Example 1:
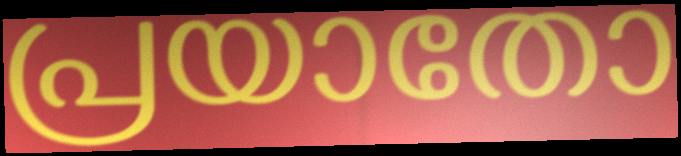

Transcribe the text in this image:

പ്രയാതോ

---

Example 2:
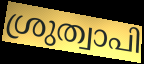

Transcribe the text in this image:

ശ്രുത്വാപി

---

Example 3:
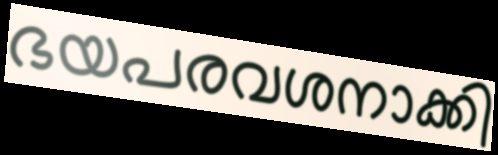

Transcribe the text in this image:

ഭയപരവശനാക്കി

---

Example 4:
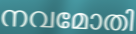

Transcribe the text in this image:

നവമോതി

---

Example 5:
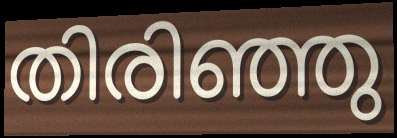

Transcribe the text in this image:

തിരിഞ്ഞു